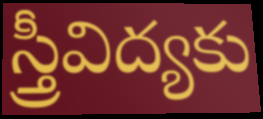
స్త్రీవిద్యకు